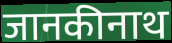
जानकीनाथ